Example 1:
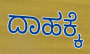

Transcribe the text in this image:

ದಾಹಕ್ಕೆ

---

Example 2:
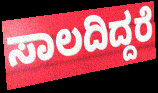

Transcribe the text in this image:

ಸಾಲದಿದ್ದರೆ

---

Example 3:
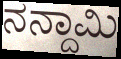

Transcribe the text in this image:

ನನ್ದಾಮಿ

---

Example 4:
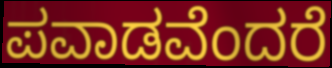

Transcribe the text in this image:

ಪವಾಡವೆಂದರೆ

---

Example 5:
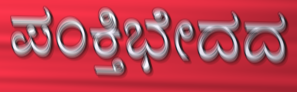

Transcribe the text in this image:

ಪಂಕ್ತಿಭೇದದ